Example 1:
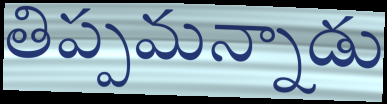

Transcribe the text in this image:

తిప్పమన్నాడు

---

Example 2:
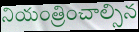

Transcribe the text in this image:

నియంత్రించాల్సిన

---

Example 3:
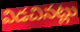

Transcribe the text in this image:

విడచినట్లు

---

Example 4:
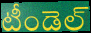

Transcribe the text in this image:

టీండెల్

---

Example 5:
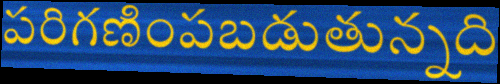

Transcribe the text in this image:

పరిగణింపబడుతున్నది